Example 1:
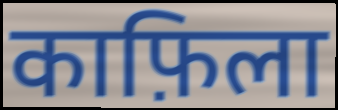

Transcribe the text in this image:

काफ़िला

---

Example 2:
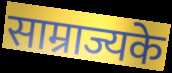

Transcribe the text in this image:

साम्राज्यके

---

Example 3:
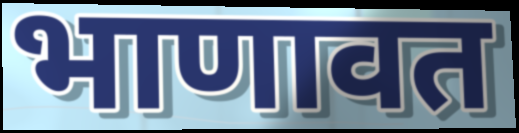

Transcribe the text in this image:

भाणावत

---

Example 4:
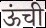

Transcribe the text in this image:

ऊंची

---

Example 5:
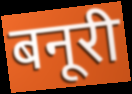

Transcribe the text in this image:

बनूरी